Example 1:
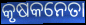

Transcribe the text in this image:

କୃଷକନେତା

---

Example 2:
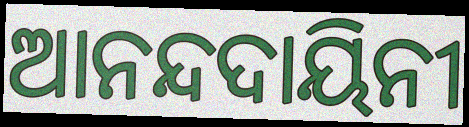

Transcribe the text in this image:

ଆନନ୍ଦଦାୟିନୀ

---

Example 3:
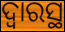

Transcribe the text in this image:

ଦ୍ବାରସ୍ଥ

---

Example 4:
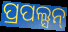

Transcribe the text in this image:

ପ୍ରପଲ୍ସନ୍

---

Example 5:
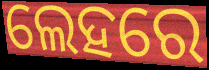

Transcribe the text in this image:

ଲେହରେ